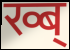
ख्ब्